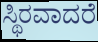
ಸ್ಥಿರವಾದರೆ